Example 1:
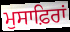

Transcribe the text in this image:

ਮੁਸਾਫ਼ਿਰਾਂ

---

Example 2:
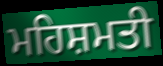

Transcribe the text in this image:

ਮਹਿਸ਼ਮਤੀ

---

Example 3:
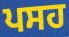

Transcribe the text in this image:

ਪਸਹ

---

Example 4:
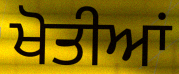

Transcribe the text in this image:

ਖੋਤੀਆਂ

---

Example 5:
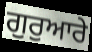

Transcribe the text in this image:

ਗੁਰੁਆਰੇ